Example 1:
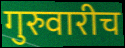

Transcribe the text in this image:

गुरुवारीच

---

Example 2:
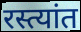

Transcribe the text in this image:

रस्त्यांत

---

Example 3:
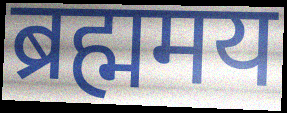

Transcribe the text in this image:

ब्रह्ममय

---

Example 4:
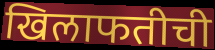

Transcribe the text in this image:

खिलाफतीची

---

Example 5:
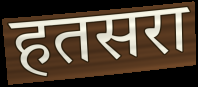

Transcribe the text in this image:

हतसरा